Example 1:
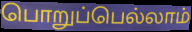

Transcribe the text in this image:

பொறுப்பெல்லாம்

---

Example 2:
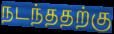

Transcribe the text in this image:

நடந்ததற்கு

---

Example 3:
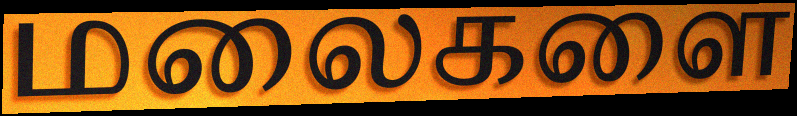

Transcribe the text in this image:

மலைகளை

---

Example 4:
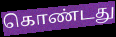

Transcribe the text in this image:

கொண்டது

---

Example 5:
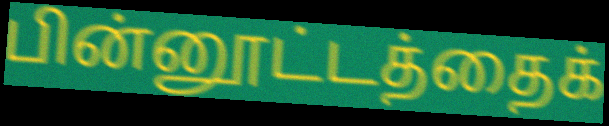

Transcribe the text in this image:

பின்னூட்டத்தைக்